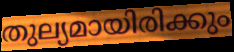
തുല്യമായിരിക്കും